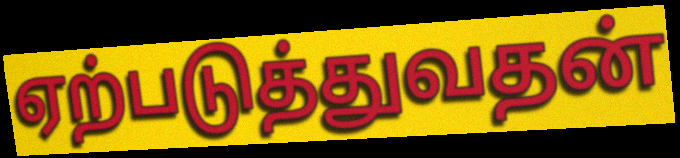
ஏற்படுத்துவதன்